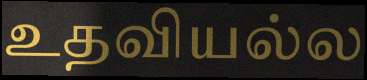
உதவியல்ல